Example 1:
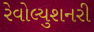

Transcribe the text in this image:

રેવોલ્યુશનરી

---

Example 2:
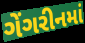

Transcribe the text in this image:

ગેંગરીનમાં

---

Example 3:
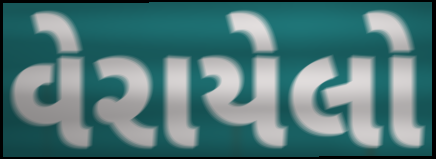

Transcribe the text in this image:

વેરાયેલો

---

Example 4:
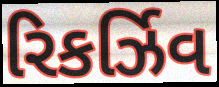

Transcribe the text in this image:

રિકર્ઝિવ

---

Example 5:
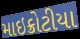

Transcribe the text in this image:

માઇક્રોટીયા